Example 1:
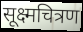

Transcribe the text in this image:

सूक्ष्मचित्रण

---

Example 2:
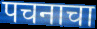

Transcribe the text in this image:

पचनाचा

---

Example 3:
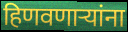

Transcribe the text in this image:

हिणवणाऱ्यांना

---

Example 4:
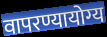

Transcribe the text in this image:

वापरण्यायोग्य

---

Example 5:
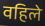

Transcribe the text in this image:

वहिले